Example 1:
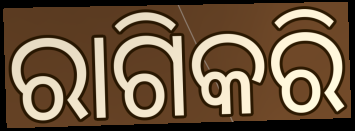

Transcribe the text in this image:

ରାଗିକରି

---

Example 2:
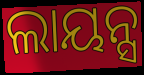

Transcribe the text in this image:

ଲାୟନ୍ସ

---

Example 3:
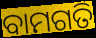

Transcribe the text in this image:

ବାମଗତି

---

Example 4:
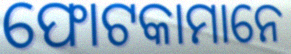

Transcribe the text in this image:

ଫୋଟକାମାନେ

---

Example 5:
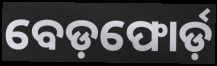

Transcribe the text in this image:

ବେଡ଼ଫୋର୍ଡ଼